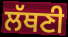
ਲੱਥਣੀ